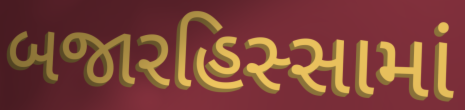
બજારહિસ્સામાં